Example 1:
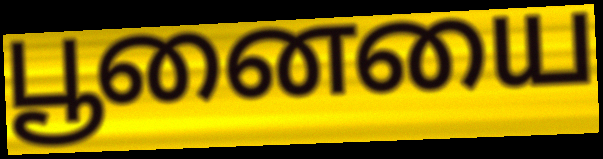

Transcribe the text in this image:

பூனையை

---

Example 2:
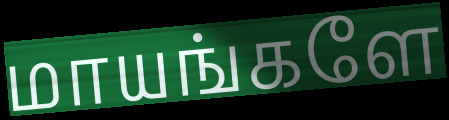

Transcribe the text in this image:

மாயங்களே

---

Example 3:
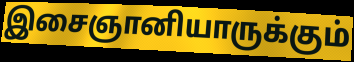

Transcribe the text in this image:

இசைஞானியாருக்கும்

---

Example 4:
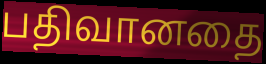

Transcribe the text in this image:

பதிவானதை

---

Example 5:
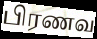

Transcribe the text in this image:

பிரணவ